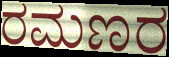
ರಮಣರ